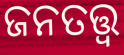
ଜନତତ୍ତ୍ୱ